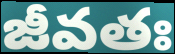
జీవతః